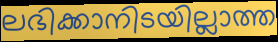
ലഭിക്കാനിടയില്ലാത്ത